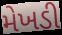
મેખડી